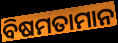
ବିଷମତାମାନ